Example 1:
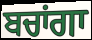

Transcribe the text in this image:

ਬਚਾਂਗਾ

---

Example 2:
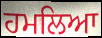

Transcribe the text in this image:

ਹਮਲਿਆ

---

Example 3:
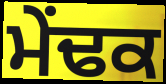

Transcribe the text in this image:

ਮੇਂਢਕ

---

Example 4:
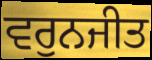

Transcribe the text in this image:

ਵਰੁਨਜੀਤ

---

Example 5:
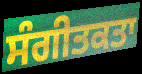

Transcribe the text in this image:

ਸੰਗੀਤਕਤਾ